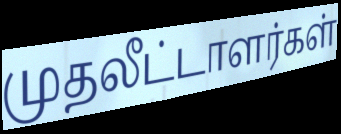
முதலீட்டாளர்கள்